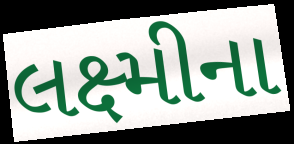
લક્ષ્મીના